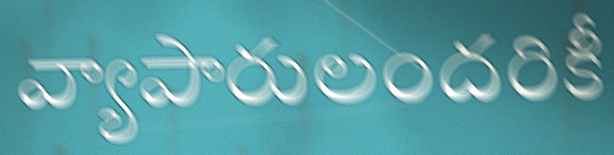
వ్యాపారులందరికీ